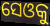
ସେଓକୁ